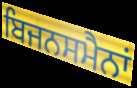
ਬਿਜਨਸਮੈਨਾਂ